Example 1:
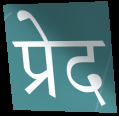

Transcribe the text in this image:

प्रेद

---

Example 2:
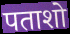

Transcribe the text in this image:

पताशो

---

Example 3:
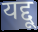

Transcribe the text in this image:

यद्दू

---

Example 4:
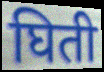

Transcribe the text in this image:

घिती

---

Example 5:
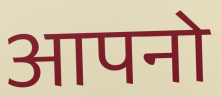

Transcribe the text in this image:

आपनो